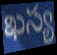
ఖస్య